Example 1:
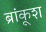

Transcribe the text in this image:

ब्रांकूश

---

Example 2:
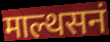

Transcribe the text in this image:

माल्थसनं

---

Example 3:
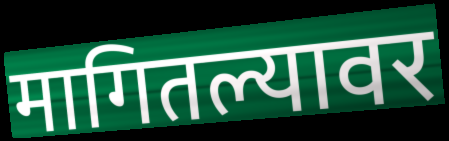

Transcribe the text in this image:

मागितल्यावर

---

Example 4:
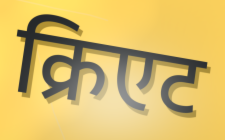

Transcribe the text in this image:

क्रिएट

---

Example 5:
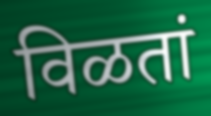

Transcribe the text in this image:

विळतां